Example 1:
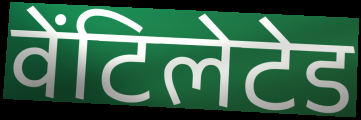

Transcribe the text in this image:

वेंटिलेटेड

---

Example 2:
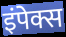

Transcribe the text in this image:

इंपेक्स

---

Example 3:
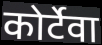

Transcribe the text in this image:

कोर्टेवा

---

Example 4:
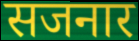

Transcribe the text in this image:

सजनार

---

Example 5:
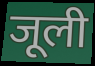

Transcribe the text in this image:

जूली